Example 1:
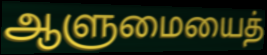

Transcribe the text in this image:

ஆளுமையைத்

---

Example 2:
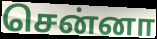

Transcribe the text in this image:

சென்னா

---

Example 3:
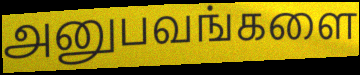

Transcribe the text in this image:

அனுபவங்களை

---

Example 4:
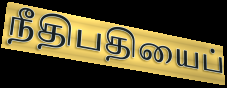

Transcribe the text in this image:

நீதிபதியைப்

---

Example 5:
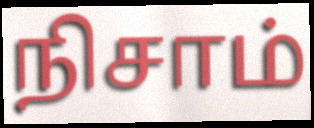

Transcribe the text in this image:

நிசாம்